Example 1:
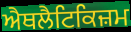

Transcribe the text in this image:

ਐਥਲੈਟਿਕਿਜ਼ਮ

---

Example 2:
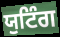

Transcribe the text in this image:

ਯੁਟਿੰਗ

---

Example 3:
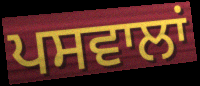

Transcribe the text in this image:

ਪਸਵਾਲਾਂ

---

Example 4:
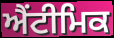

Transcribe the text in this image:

ਐਂਟੀਮਿਕ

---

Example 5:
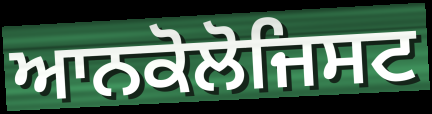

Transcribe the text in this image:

ਆਨਕੋਲੋਜਿਸਟ